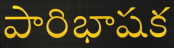
పారిభాషక